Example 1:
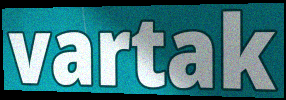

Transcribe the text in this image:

vartak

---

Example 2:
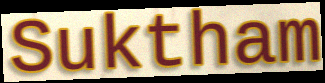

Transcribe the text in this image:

Suktham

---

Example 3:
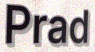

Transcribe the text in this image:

Prad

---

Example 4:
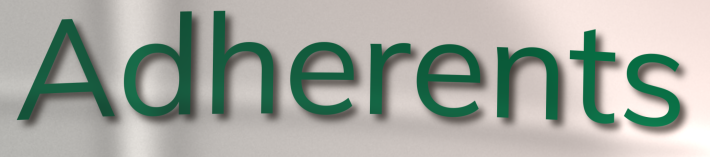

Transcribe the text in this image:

Adherents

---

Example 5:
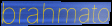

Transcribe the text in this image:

brahmato